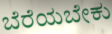
ಬೆರೆಯಬೇಕು